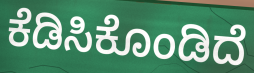
ಕೆಡಿಸಿಕೊಂಡಿದೆ